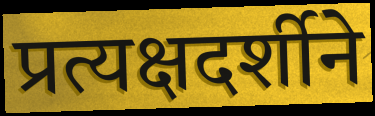
प्रत्यक्षदर्शीने